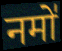
नमो॑